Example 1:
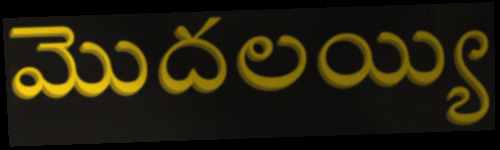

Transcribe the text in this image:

మొదలయ్యి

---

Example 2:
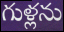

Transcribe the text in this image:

గుళ్లను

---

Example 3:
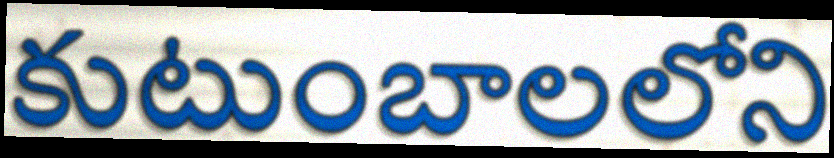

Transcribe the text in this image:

కుటుంబాలలోని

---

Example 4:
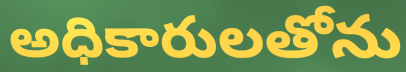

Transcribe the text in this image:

అధికారులతోను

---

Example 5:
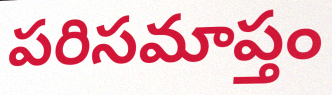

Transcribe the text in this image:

పరిసమాప్తం